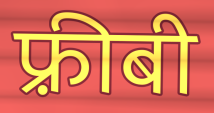
फ़्रीबी